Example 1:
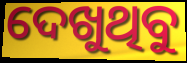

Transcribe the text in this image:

ଦେଖୁଥିବୁ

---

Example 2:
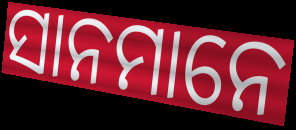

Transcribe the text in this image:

ସାନମାନେ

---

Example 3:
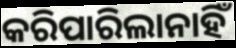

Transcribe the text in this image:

କରିପାରିଲାନାହିଁ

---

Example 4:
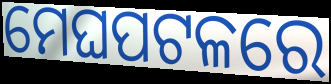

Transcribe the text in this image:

ମେଘପଟଳରେ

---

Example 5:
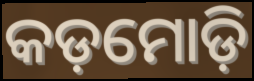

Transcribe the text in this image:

କଡ଼ମୋଡ଼ି